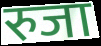
रुजा